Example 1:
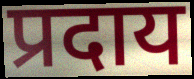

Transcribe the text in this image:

प्रदाय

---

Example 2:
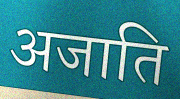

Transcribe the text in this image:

अजाति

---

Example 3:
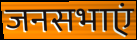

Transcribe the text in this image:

जनसभाएं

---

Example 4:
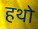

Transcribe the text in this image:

हथो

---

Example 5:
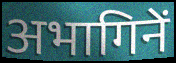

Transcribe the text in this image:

अभागिनें